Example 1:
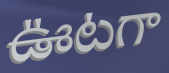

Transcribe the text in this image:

ఊటగా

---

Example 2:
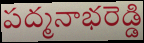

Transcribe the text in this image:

పద్మనాభరెడ్డి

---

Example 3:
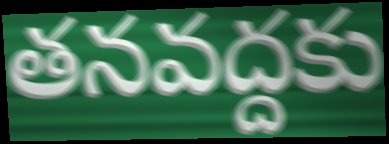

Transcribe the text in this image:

తనవద్దకు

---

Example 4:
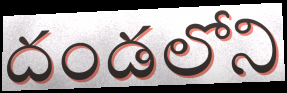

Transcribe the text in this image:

దండలోని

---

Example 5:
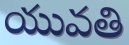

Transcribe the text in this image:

యువతి